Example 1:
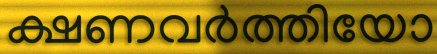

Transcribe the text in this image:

ക്ഷണവർത്തിയോ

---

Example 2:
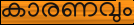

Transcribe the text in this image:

കാരണവും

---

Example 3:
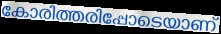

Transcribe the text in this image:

കോരിത്തരിപ്പോടെയാണ്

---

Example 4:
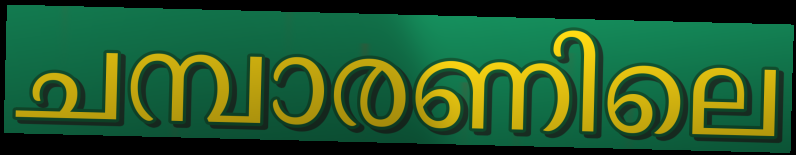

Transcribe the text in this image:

ചമ്പാരണിലെ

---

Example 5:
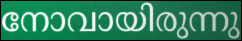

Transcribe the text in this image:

നോവായിരുന്നു